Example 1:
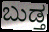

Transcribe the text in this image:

ಬುಡ್ತ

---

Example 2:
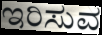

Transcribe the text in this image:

ಇರಿಸುವ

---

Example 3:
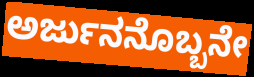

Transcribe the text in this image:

ಅರ್ಜುನನೊಬ್ಬನೇ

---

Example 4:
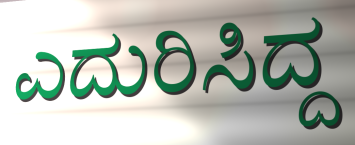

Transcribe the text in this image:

ಎದುರಿಸಿದ್ದ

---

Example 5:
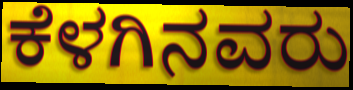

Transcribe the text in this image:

ಕೆಳಗಿನವರು